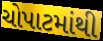
ચોપાટમાંથી